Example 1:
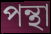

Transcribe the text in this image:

পন্থা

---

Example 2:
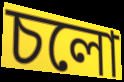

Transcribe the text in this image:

চলো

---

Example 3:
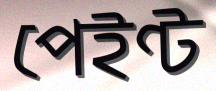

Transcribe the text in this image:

পেইণ্ট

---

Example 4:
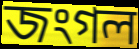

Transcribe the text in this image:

জংগল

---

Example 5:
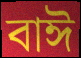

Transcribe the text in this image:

বাঈ